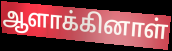
ஆளாக்கினாள்